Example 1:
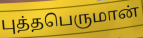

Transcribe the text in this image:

புத்தபெருமான்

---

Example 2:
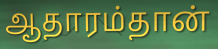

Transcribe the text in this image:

ஆதாரம்தான்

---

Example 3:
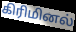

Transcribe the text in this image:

கிரிமினல்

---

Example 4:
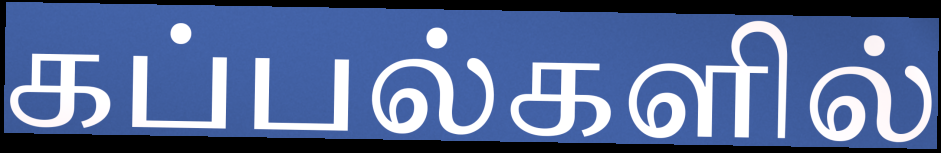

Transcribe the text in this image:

கப்பல்களில்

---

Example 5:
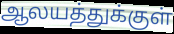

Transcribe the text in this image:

ஆலயத்துக்குள்